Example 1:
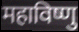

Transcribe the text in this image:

महाविष्णु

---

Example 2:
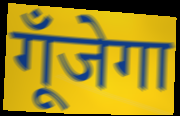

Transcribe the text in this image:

गूँजेगा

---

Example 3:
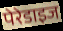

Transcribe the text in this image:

पेरेडाइज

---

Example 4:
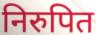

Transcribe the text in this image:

निरुपित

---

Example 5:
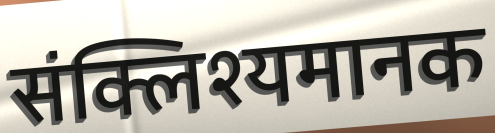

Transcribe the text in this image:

संक्लिश्यमानक